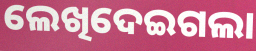
ଲେଖିଦେଇଗଲା